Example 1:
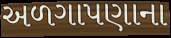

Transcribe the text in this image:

અળગાપણાના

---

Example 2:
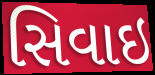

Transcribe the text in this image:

સિવાઇ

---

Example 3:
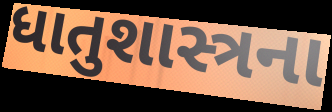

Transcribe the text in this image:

ધાતુશાસ્ત્રના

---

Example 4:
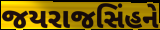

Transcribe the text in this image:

જયરાજસિંહને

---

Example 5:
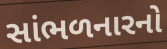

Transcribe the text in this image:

સાંભળનારનો